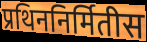
प्रथिननिर्मितीस